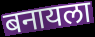
बनायला